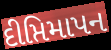
દીપ્તિમાપન